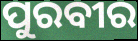
ପୁରବୀର